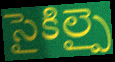
సైకిల్పై